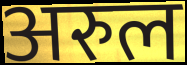
अरुल